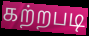
கற்றபடி